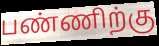
பண்ணிற்கு